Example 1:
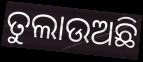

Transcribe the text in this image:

ତୁଲାଉଅଛି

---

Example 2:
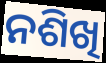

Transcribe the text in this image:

ନଶିଖି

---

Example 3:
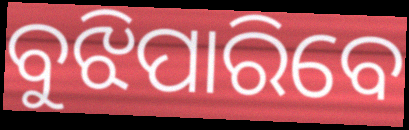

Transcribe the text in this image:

ବୁଝିପାରିବେ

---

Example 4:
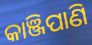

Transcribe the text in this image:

କାଞ୍ଜିପାଣି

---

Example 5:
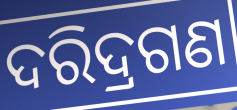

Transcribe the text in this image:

ଦରିଦ୍ରଗଣ